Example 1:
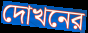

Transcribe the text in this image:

দোখনের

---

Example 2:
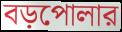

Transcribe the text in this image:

বড়পোলার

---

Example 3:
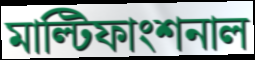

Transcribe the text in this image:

মাল্টিফাংশনাল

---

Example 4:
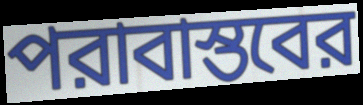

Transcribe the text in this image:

পরাবাস্তবের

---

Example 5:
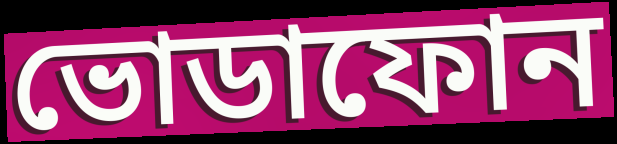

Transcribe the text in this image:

ভোডাফোন